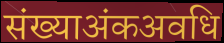
संख्याअंकअवधि